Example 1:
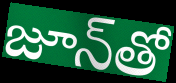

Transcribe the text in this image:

జూన్‌తో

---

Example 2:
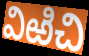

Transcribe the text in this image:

విఱిచి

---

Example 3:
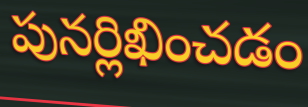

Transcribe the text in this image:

పునర్లిఖించడం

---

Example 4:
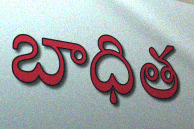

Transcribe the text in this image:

బాధిత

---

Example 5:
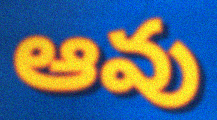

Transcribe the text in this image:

ఆవు